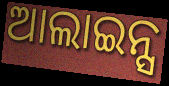
ଆଲାଇନ୍ସ